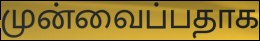
முன்வைப்பதாக